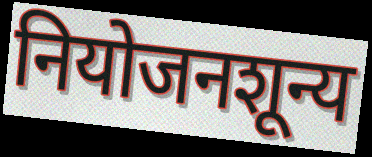
नियोजनशून्य